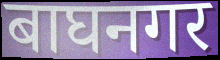
बाघनगर